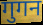
गुगन